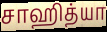
சாஹித்யா